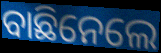
ବାଛିନେଲେ